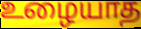
உழையாத